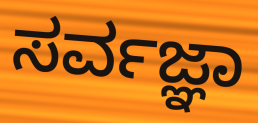
ಸರ್ವಜ್ಞಾ